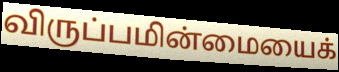
விருப்பமின்மையைக்